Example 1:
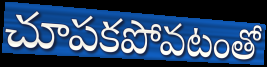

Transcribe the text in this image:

చూపకపోవటంతో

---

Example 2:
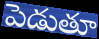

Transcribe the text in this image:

పెడుతూ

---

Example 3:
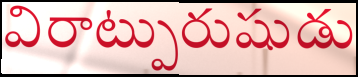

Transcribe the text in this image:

విరాట్పురుషుడు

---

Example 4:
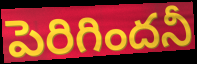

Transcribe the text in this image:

పెరిగిందనీ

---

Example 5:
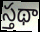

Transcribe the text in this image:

స్తథా